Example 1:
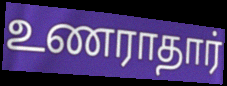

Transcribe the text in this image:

உணராதார்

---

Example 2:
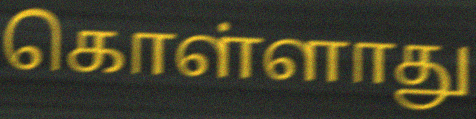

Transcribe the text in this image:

கொள்ளாது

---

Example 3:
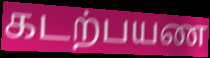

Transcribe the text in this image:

கடற்பயண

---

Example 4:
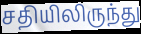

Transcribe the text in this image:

சதியிலிருந்து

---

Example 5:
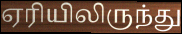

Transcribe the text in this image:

ஏரியிலிருந்து